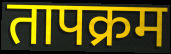
तापक्रम